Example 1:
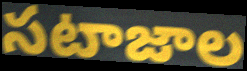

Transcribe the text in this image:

సటాజాల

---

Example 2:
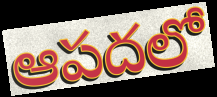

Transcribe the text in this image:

ఆపదలో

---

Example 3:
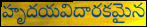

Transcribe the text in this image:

హృదయవిదారకమైన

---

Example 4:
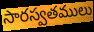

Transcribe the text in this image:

సారస్వతములు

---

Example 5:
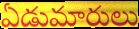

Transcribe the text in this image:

ఏడుమారులు